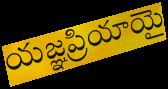
యజ్ఞప్రియాయై